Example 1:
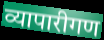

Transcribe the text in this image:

व्यापारीगण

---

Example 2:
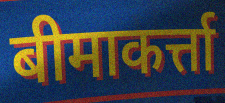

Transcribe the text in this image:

बीमाकर्त्ता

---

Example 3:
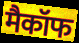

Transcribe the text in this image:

मैकॉफ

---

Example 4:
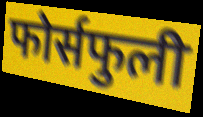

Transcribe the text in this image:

फोर्सफुली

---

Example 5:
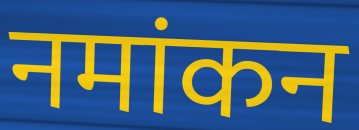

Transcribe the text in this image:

नमांकन